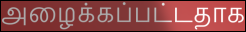
அழைக்கப்பட்டதாக